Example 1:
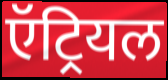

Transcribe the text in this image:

ऍट्रियल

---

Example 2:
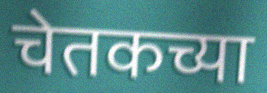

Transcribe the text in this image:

चेतकच्या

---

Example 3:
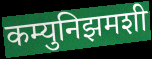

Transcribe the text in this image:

कम्युनिझमशी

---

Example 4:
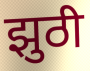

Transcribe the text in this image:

झुठी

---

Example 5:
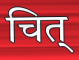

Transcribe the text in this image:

चित्